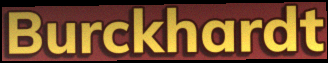
Burckhardt